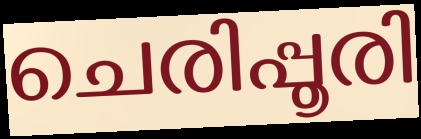
ചെരിപ്പൂരി